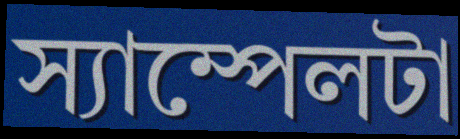
স্যাম্পেলটা